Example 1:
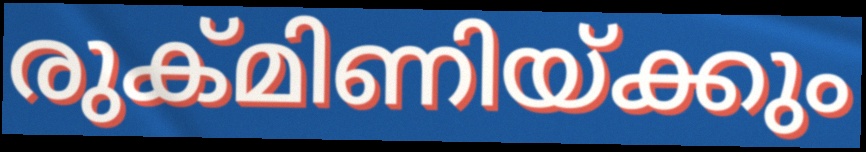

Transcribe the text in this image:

രുക്മിണിയ്ക്കും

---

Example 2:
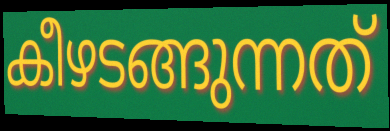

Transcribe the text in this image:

കീഴടങ്ങുന്നത്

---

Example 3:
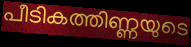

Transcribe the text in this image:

പീടികത്തിണ്ണയുടെ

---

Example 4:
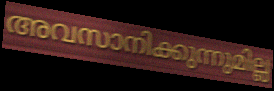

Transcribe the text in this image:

അവസാനിക്കുന്നുമില്ല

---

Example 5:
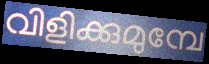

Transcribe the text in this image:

വിളിക്കുമുമ്പേ